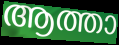
ആത്താ